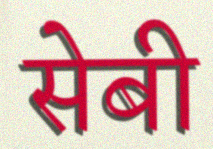
सेबी